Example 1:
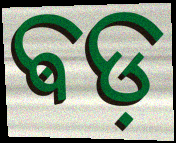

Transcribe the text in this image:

ଵଡ଼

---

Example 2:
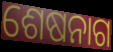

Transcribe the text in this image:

ଶେଷନାଗ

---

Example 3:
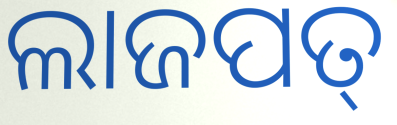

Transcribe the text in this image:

ଲାଜପତ୍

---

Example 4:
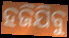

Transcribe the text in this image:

ହଜିଯିବୁ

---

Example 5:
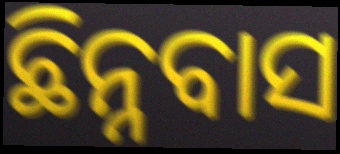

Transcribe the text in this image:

ଛିନ୍ନବାସ